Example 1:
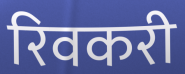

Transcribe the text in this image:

रिवकरी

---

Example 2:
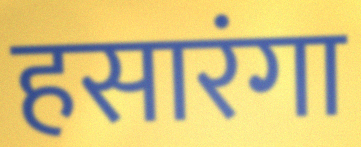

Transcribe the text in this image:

हसारंगा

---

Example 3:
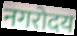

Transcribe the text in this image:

नगरोदय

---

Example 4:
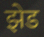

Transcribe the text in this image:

झेड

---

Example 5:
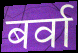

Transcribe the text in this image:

बर्वा